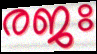
രജഃ